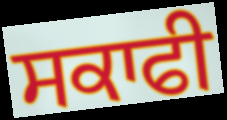
ਸਕਾਫੀ